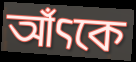
আঁৎকে